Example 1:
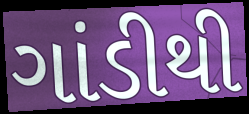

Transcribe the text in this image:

ગાંડીથી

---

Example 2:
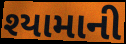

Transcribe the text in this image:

શ્યામાની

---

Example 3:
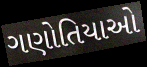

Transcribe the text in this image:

ગણોતિયાઓ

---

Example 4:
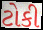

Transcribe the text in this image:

ટોકી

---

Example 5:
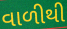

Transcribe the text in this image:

વાળીથી